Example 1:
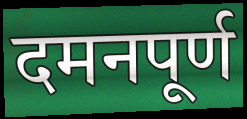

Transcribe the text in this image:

दमनपूर्ण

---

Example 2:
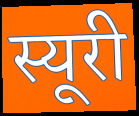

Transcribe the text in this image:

स्यूरी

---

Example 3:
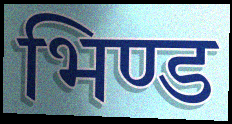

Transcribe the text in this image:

भिण्‍ड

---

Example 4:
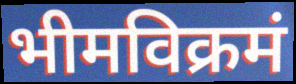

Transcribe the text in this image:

भीमविक्रमं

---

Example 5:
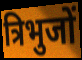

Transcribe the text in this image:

त्रिभुजों